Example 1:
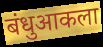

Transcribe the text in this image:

बंधुआकला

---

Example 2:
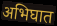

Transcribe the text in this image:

अभिघात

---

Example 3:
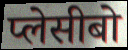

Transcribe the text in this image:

प्लेसीबो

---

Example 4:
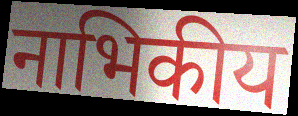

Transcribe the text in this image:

नाभिकीय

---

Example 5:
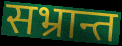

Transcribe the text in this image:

सभ्रान्त